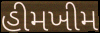
હીમખીમ